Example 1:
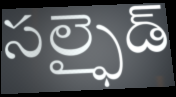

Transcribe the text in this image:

సల్ఫైడ్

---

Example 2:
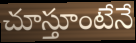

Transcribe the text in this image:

చూస్తూంటేనే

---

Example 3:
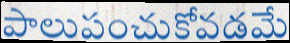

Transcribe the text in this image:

పాలుపంచుకోవడమే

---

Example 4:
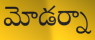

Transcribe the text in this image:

మోడర్నా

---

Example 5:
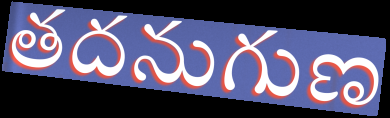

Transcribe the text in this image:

తదనుగుణ